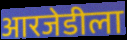
आरजेडीला